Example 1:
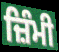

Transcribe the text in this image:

ਜ਼ਿੰਮੀ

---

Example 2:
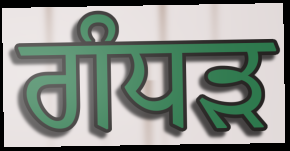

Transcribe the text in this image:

ਗੰਧੜ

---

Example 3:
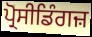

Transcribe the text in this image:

ਪ੍ਰੋਸੀਡਿੰਗਜ਼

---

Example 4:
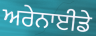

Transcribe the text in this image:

ਅਰੇਨਾਈਡੇ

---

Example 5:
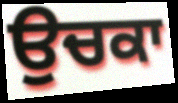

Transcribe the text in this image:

ਉਚਕਾ